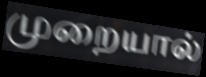
முறையால்